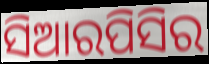
ସିଆରପିସିର